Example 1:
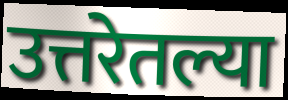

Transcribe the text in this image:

उत्तरेतल्या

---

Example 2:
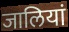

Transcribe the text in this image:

जालियां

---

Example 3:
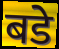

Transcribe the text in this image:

बडे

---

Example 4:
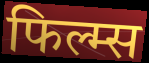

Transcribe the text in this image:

फिल्म्स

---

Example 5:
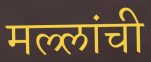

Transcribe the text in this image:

मल्लांची